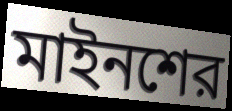
মাইনশের